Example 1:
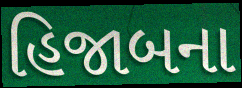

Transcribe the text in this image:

હિજાબના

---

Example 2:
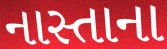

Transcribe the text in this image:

નાસ્તાના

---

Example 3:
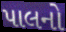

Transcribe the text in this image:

પાલનો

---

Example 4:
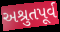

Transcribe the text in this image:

અશ્રુતપૂર્વ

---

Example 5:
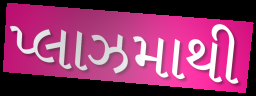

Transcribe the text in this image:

પ્લાઝમાથી